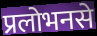
प्रलोभनसे